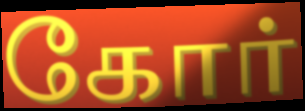
கோர்